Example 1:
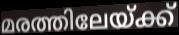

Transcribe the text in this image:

മരത്തിലേയ്ക്ക്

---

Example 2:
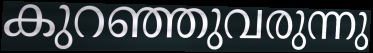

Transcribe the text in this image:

കുറഞ്ഞുവരുന്നു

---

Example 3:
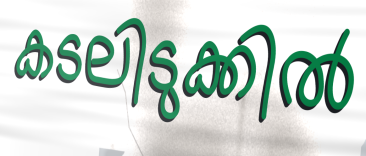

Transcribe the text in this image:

കടലിടുക്കിൽ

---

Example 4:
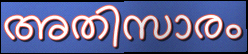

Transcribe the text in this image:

അതിസാരം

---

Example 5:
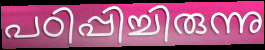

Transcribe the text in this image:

പഠിപ്പിച്ചിരുന്നു